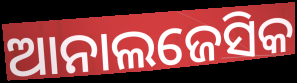
ଆନାଲଜେସିକ